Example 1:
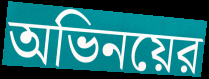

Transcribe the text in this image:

অভিনয়ের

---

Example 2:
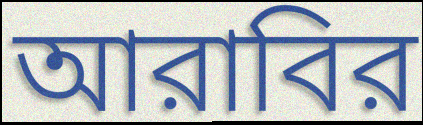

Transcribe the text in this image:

আরাবির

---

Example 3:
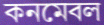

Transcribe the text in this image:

কনমেবল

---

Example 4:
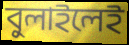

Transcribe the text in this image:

বুলাইলেই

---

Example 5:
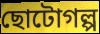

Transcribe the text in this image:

ছোটোগল্প